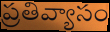
ప్రతివ్యాసం